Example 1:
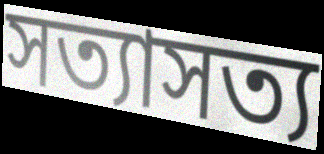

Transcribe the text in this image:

সত্যাসত্য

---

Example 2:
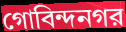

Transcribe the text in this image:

গোবিন্দনগর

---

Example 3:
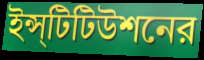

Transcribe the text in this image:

ইন্স্টিটিউশনের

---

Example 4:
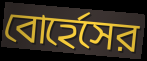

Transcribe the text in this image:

বোর্হেসের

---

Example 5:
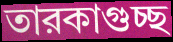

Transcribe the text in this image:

তারকাগুচ্ছ